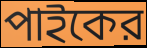
পাইকের